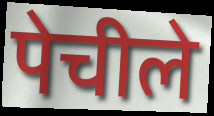
पेचीले